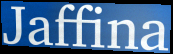
Jaffina